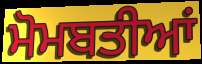
ਮੋਮਬਤੀਆਂ